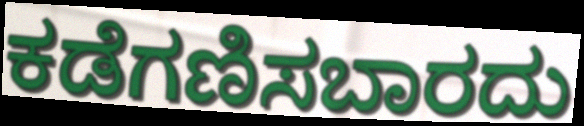
ಕಡೆಗಣಿಸಬಾರದು